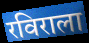
रविराला